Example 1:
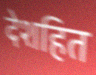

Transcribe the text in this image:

देशहित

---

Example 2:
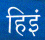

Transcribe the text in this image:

हिइं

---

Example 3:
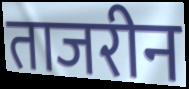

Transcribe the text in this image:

ताजरीन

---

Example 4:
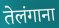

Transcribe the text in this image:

तेलंगाना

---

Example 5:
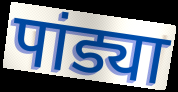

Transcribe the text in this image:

पांड्या